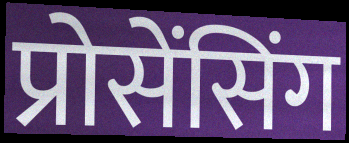
प्रोसेंसिंग